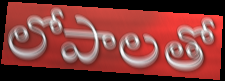
లోపాలతో